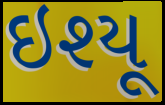
ઇશ્યૂ